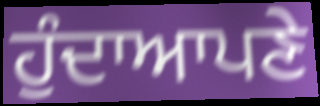
ਹੁੰਦਾਆਪਣੇ